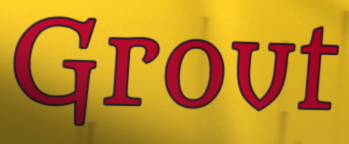
Grout